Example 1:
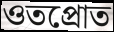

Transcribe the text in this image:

ওতপ্রোত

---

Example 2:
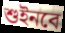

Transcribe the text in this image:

শুইনবে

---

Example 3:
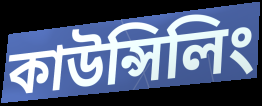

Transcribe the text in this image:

কাউন্সিলিং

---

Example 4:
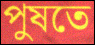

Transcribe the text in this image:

পুষতে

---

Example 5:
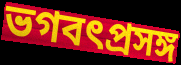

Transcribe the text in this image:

ভগবৎপ্রসঙ্গ